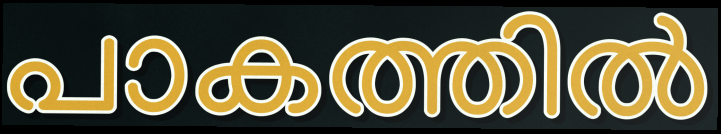
പാകത്തിൽ